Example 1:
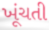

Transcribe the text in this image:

ખૂંચતી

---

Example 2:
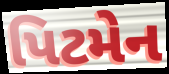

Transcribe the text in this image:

પિટમેન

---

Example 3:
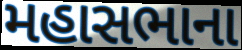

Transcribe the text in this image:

મહાસભાના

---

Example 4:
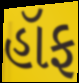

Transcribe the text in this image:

હૉફ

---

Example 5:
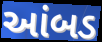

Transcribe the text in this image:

આંબડ